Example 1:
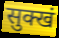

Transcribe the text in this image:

सुक्खं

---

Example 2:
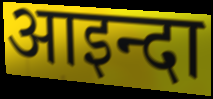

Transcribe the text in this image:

आइन्दा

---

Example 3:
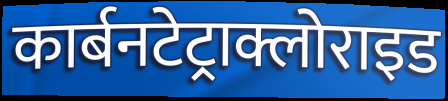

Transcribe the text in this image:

कार्बनटेट्राक्लोराइड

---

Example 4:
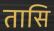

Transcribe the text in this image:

तासि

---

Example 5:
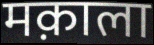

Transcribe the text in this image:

मक़ाला